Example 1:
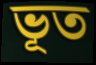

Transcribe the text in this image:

ভূত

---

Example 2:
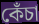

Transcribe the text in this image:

কেঁচা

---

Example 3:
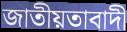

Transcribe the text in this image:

জাতীয়তাবাদী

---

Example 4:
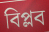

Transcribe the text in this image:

বিপ্লব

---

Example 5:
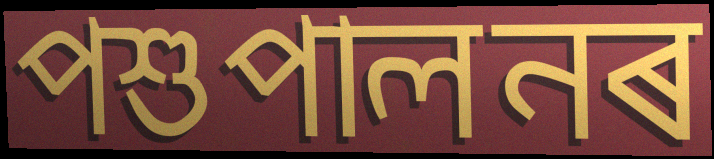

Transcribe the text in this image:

পশুপালনৰ